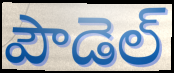
పౌడెల్